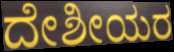
ದೇಶೀಯರ